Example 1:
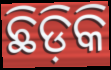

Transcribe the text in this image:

ଛିଡ଼ିକି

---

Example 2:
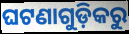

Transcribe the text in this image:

ଘଟଣାଗୁଡ଼ିକରୁ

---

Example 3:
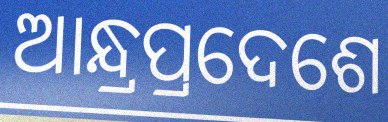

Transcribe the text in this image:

ଆନ୍ଧ୍ରପ୍ରଦେଶେ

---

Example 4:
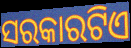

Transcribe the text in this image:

ସରକାରଟିଏ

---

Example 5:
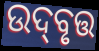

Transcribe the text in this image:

ଉଦ୍‌ବୃତ୍ତ